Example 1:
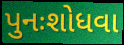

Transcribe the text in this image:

પુનઃશોધવા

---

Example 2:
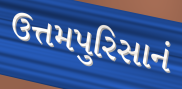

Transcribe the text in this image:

ઉત્તમપુરિસાનં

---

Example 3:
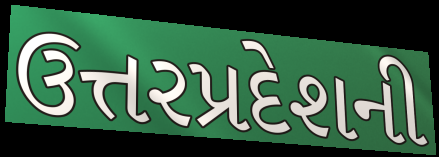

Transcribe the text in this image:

ઉત્તરપ્રદેશની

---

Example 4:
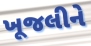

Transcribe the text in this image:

ખૂજલીને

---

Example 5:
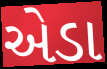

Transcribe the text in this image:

એડા